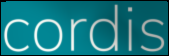
cordis